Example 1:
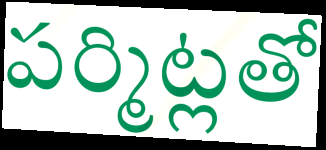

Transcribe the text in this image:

పర్మిట్లతో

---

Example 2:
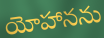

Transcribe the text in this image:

యోహానను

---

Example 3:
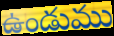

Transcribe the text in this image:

ఉండుము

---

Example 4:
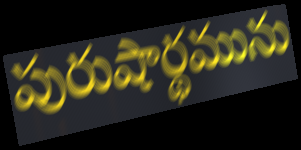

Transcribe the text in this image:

పురుషార్థమును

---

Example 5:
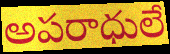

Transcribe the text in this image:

అపరాధులే